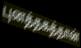
புனத்தகத்தான்